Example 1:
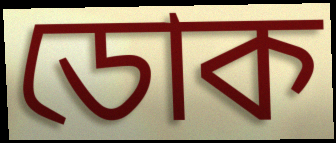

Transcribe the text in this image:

ডোক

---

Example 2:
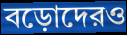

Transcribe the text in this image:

বড়োদেরও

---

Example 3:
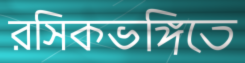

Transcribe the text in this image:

রসিকভঙ্গিতে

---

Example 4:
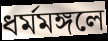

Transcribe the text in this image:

ধর্মমঙ্গলে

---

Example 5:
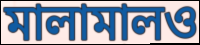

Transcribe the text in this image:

মালামালও